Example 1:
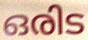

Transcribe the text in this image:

ഒരിട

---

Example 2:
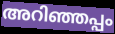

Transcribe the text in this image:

അറിഞ്ഞപ്പം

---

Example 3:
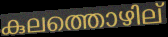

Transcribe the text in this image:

കുലത്തൊഴില്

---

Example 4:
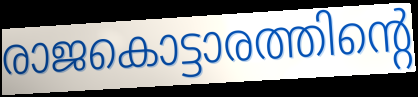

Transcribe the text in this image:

രാജകൊട്ടാരത്തിന്റെ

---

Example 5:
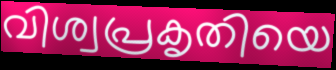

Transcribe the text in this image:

വിശ്വപ്രകൃതിയെ